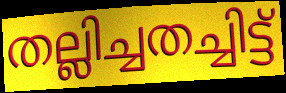
തല്ലിച്ചതച്ചിട്ട്